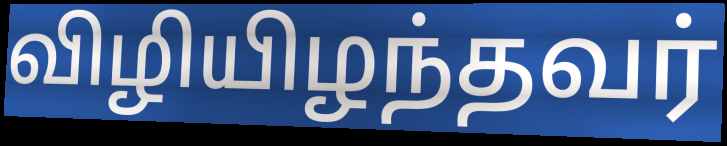
விழியிழந்தவர்